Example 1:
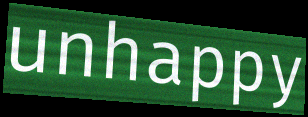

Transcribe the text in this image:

unhappy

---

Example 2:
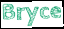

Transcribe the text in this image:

Bryce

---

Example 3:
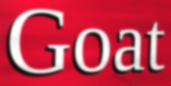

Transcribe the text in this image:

Goat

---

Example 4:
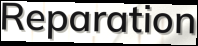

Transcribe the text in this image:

Reparation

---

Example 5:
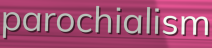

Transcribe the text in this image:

parochialism